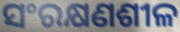
ସଂରକ୍ଷଣଶୀଳ